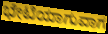
ಭೇಟಿಯಾಗುವಾಗ